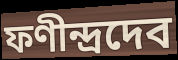
ফণীন্দ্রদেব